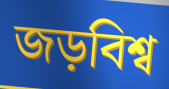
জড়বিশ্ব